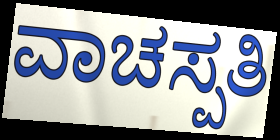
ವಾಚಸ್ಪತಿ